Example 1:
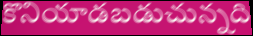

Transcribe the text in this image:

కొనియాడబడుచున్నది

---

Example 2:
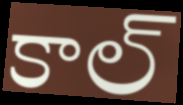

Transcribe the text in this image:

కాల్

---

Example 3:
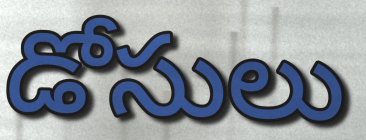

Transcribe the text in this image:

డోసులు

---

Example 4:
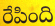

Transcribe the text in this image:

రేపింది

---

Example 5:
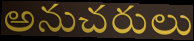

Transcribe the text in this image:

అనుచరులు